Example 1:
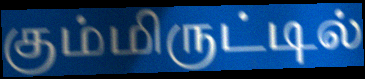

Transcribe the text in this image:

கும்மிருட்டில்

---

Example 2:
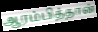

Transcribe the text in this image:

ஆரம்பித்தான்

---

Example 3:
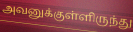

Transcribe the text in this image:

அவனுக்குள்ளிருந்து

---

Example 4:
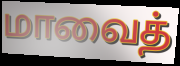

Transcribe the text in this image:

மாவைத்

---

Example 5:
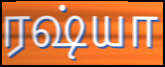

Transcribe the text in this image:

ரஷ்யா